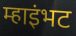
म्हाइंभट